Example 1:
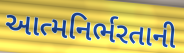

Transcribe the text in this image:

આત્મનિર્ભરતાની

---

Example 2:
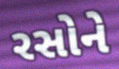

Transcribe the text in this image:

રસોને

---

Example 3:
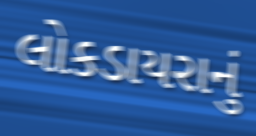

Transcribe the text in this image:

લોકડાયરાનું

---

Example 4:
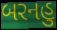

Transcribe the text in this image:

બરનહુ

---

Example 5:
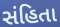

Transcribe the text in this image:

સંહિતા